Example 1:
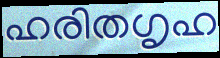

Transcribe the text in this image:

ഹരിതഗൃഹ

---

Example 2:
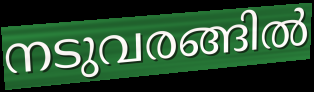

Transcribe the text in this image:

നടുവരങ്ങിൽ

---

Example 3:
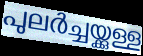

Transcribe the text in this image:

പുലർച്ചയ്ക്കുള്ള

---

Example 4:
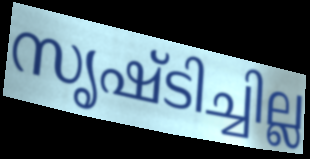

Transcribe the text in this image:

സൃഷ്ടിച്ചില്ല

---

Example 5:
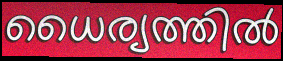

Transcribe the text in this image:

ധൈര്യത്തിൽ